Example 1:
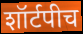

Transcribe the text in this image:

शॉर्टपीच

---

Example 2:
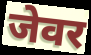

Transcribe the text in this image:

जेवर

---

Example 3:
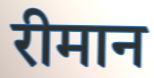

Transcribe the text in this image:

रीमान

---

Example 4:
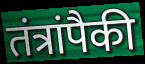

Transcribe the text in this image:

तंत्रांपैकी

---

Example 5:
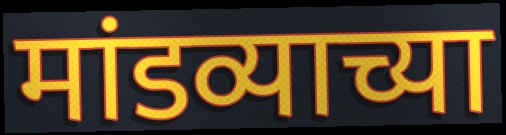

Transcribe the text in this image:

मांडव्याच्या